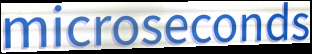
microseconds